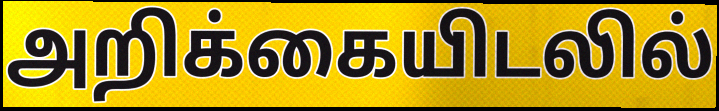
அறிக்கையிடலில்